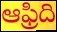
ఆఫ్రిది